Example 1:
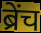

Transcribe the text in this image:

ब्रेंच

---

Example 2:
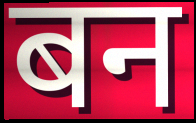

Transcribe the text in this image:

बन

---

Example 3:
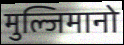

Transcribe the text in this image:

मुल्जिमानो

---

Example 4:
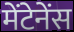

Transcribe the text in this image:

मेंटेनेंस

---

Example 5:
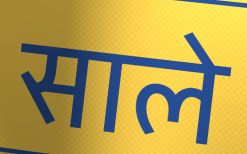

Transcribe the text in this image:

साले